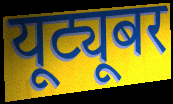
यूट्यूबर